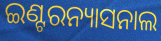
ଇଣ୍ଟରନ୍ୟାସନାଲ